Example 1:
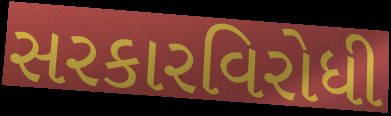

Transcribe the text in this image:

સરકારવિરોધી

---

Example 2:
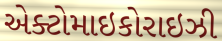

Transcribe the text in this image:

એક્ટોમાઇકોરાઇઝી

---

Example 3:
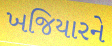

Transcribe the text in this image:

ખજિયારને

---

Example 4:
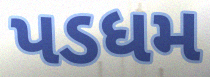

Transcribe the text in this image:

પડધમ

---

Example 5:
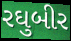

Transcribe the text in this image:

રઘુબીર